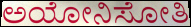
ಅಯೋನಿಸೋತಿ